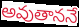
అవుతాననే